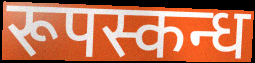
रूपस्कन्ध